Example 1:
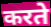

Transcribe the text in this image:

करते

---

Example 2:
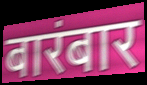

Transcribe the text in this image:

बारंबार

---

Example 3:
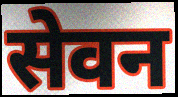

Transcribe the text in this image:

सेवन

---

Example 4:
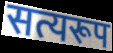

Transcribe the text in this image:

सत्यरूप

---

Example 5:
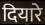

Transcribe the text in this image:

दियारे